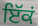
ਇੱਕਂ